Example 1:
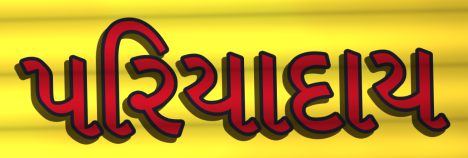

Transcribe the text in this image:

પરિયાદાય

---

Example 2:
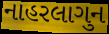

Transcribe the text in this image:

નાહરલાગુન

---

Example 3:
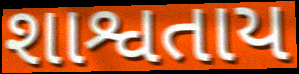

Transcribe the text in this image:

શાશ્વતાય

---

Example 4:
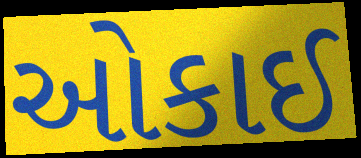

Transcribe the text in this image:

ઓકાઈ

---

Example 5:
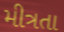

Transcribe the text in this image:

મીત્રતા